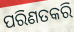
ପରିଣତକରି